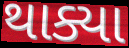
થાક્યા